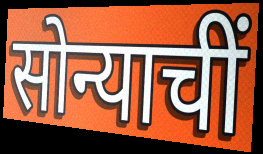
सोन्याचीं